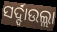
ସର୍ଦ୍ଦାଉଲ୍ଲା